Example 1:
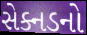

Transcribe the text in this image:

સેક્નડનો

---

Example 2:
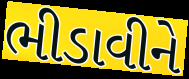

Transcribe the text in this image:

ભીડાવીને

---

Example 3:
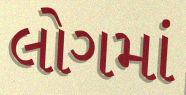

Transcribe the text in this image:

લોગમાં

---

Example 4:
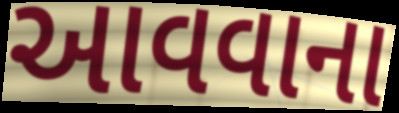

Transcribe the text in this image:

આવવાના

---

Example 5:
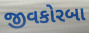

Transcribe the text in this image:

જીવકોરબા